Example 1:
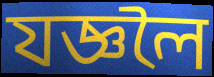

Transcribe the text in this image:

যজ্ঞলৈ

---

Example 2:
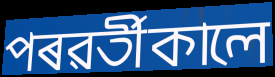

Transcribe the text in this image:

পৰৱৰ্তীকালে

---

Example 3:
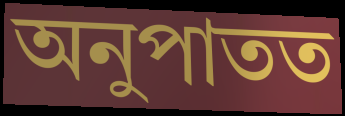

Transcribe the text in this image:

অনুপাতত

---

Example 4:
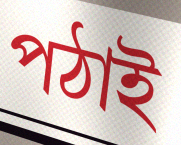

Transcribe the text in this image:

পঠাই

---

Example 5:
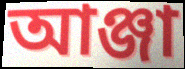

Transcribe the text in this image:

আঞ্জা